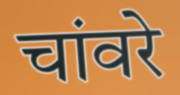
चांवरे